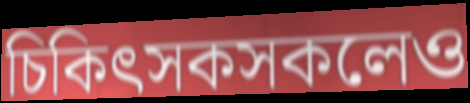
চিকিৎসকসকলেও